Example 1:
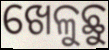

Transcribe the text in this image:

ଖେଳୁଛୁ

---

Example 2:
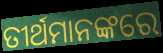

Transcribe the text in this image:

ତୀର୍ଥମାନଙ୍କରେ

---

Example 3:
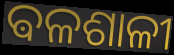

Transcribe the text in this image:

ଵଳଶାଳୀ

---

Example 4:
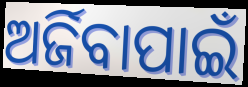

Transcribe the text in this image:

ଅର୍ଜିବାପାଇଁ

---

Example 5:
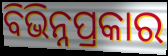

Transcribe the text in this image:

ବିଭିନ୍ନପ୍ରକାର